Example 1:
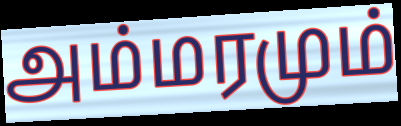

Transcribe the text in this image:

அம்மரமும்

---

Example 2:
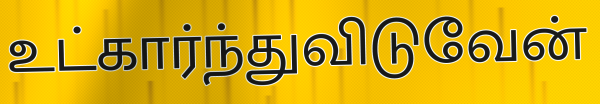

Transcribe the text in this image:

உட்கார்ந்துவிடுவேன்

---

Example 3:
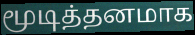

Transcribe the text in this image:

மூடித்தனமாக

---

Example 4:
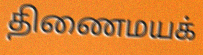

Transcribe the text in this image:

திணைமயக்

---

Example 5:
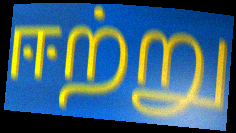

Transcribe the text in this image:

ஈற்று